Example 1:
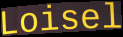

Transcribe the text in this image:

Loisel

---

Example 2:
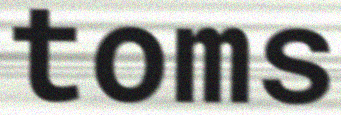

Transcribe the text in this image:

toms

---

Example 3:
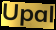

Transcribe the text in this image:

Upal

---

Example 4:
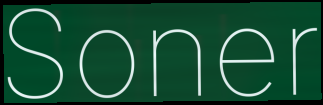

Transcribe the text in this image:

Soner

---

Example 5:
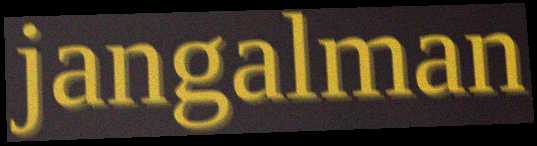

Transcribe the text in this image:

jangalman